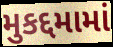
મુકદ્દમામાં